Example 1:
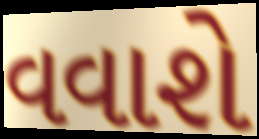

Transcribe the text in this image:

વવાશે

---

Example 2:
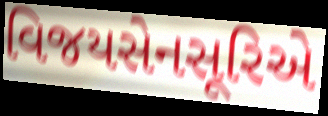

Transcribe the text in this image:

વિજયસેનસૂરિએ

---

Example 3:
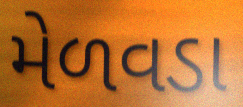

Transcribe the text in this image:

મેળવડા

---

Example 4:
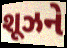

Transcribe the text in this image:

શૂઝને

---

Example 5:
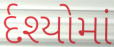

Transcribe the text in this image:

ર્દશ્યોમાં